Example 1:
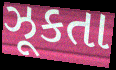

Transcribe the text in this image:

ઝૂકતા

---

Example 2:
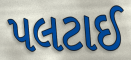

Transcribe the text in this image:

પલટાઈ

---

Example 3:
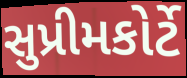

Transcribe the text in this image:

સુપ્રીમકોર્ટે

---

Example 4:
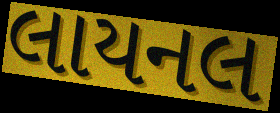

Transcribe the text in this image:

લાયનલ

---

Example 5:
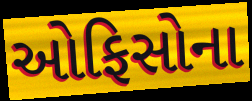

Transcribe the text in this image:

ઓફિસોના